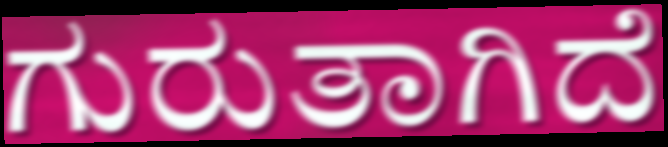
ಗುರುತಾಗಿದೆ